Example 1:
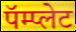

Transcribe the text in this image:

पॅम्प्लेट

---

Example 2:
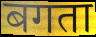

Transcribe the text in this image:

बगता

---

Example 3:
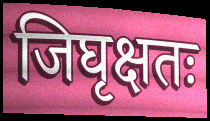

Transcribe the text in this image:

जिघृक्षतः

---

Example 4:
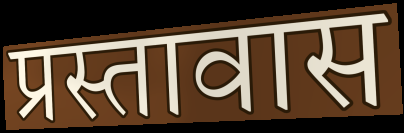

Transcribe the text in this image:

प्रस्तावास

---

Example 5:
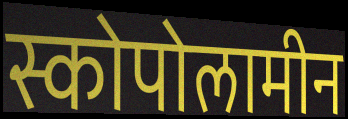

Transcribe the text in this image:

स्कोपोलामीन